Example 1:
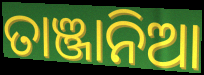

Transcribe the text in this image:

ତାଞ୍ଜାନିଆ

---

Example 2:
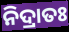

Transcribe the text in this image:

ନିଦ୍ରାତଃ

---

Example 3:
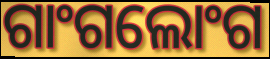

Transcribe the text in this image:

ଗାଂଗଲୋଂଗ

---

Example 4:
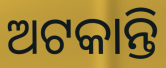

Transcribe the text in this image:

ଅଟକାନ୍ତି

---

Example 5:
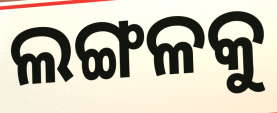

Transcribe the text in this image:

ଲଙ୍ଗଳକୁ